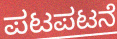
ಪಟಪಟನೆ